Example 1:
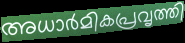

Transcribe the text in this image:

അധാർമികപ്രവൃത്തി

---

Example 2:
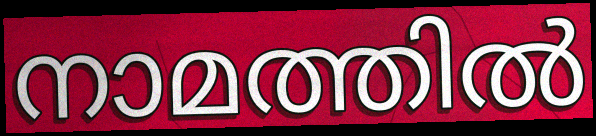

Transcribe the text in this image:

നാമത്തിൽ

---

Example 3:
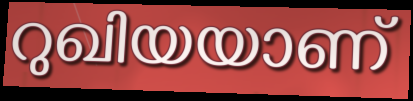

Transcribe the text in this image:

റുഖിയയാണ്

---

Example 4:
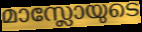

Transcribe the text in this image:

മാസ്ലോയുടെ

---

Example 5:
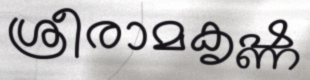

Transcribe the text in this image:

ശ്രീരാമകൃഷ്ണ